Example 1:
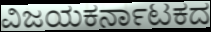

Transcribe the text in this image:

ವಿಜಯಕರ್ನಾಟಕದ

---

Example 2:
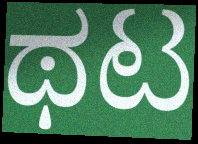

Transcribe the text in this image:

ಥಟ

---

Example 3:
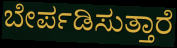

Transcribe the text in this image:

ಬೇರ್ಪಡಿಸುತ್ತಾರೆ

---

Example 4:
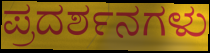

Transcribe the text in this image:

ಪ್ರದರ್ಶನಗಳು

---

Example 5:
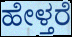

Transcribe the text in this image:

ಹೇಳ್ತರೆ